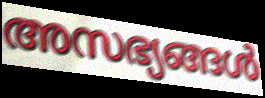
അസഭ്യങ്ങൾ